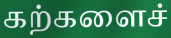
கற்களைச்